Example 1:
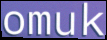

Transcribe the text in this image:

omuk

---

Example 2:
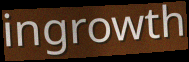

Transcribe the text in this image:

ingrowth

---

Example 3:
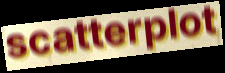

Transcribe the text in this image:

scatterplot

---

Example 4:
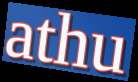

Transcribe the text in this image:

athu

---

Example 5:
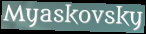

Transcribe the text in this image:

Myaskovsky